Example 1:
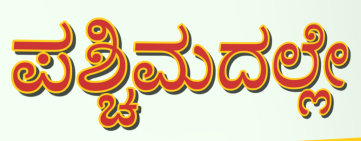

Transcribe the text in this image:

ಪಶ್ಚಿಮದಲ್ಲೇ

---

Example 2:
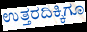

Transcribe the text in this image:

ಉತ್ತರದಿಕ್ಕಿಗೂ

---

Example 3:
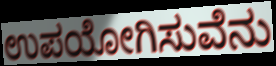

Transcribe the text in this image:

ಉಪಯೋಗಿಸುವೆನು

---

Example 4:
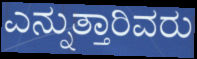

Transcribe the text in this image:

ಎನ್ನುತ್ತಾರಿವರು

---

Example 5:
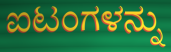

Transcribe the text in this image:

ಐಟಂಗಳನ್ನು